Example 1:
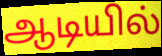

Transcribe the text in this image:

ஆடியில்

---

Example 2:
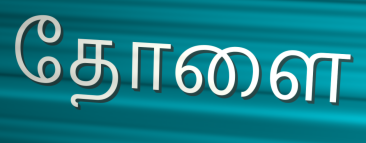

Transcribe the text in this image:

தோளை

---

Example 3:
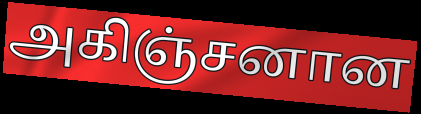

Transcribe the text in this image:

அகிஞ்சனான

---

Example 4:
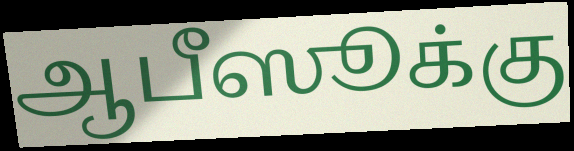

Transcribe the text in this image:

ஆபீஸூக்கு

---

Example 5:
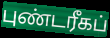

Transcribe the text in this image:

புண்டரீகப்